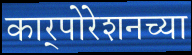
कार्पोरेशनच्या